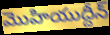
మొహియుద్దీన్